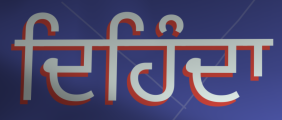
ਦਿਹਿੰਦਾ